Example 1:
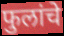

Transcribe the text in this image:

फुलांचे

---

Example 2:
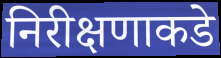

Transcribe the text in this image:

निरीक्षणाकडे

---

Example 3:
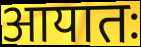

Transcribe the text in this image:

आयातः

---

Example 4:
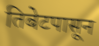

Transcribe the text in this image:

तिबेटपासून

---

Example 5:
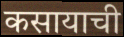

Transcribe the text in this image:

कसायाची